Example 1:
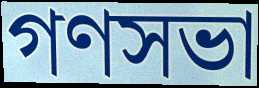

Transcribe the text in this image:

গণসভা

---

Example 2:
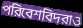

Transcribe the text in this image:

পরিবেশবিদরাও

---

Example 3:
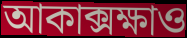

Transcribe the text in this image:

আকাক্সক্ষাও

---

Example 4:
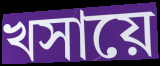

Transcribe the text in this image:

খসায়ে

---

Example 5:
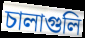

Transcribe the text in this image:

চালাগুলি